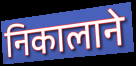
निकालाने